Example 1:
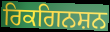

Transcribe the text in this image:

ਰਿਕਗਿਨਸ਼ਨ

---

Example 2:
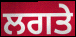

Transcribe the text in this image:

ਲਗਤੇ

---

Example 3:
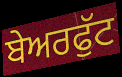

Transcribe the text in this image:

ਬੇਅਰਫੁੱਟ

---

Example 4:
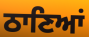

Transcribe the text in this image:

ਠਾਣਿਆਂ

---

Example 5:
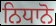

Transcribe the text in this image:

ਨਿਧਾਨੋ